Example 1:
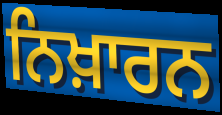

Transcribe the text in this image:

ਨਿਖ਼ਾਰਨ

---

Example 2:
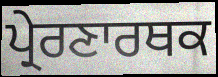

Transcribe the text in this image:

ਪ੍ਰੇਰਣਾਰਥਕ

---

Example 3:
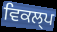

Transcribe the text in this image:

ਵਿਕਲ੍ਪ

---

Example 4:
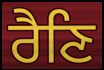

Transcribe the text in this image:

ਰੈਣਿ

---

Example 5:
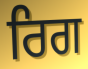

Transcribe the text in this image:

ਰਿਗ